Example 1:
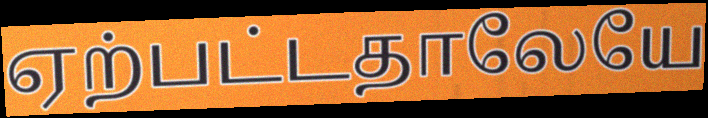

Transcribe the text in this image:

ஏற்பட்டதாலேயே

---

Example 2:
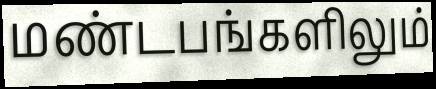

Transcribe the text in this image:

மண்டபங்களிலும்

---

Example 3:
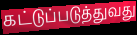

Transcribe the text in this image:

கட்டுப்படுத்துவது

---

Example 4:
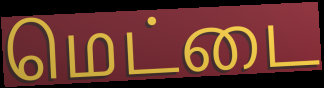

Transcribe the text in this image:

மெட்டை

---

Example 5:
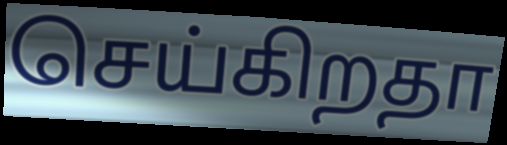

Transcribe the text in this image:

செய்கிறதா